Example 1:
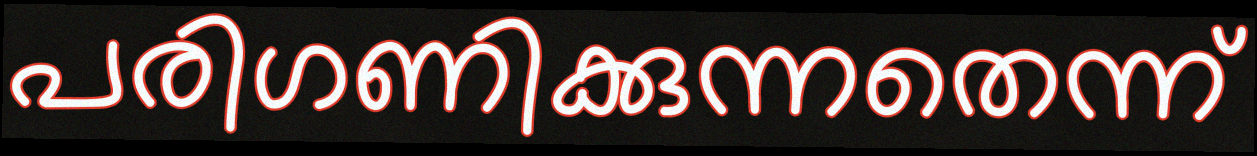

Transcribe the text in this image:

പരിഗണിക്കുന്നതെന്ന്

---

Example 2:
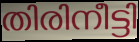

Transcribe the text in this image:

തിരിനീട്ടി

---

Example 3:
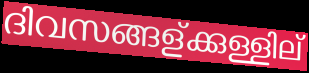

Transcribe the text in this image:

ദിവസങ്ങള്ക്കുള്ളില്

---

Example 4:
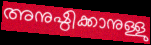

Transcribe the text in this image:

അനുഷ്ഠിക്കാനുള്ളു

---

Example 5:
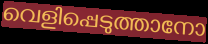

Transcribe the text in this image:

വെളിപ്പെടുത്താനോ